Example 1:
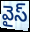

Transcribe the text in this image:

వైస్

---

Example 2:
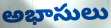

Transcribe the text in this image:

అభాసులు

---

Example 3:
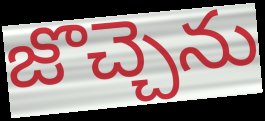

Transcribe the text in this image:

జొచ్చెను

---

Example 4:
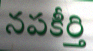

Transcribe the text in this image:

నపకీర్తి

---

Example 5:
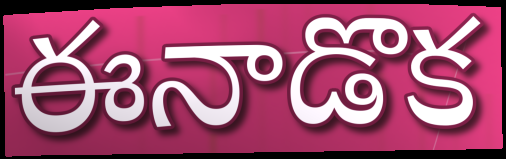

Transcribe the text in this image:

ఈనాడొక